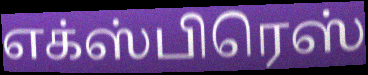
எக்ஸ்பிரெஸ்